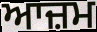
ਆਜ਼ਮ